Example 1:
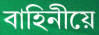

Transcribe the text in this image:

বাহিনীয়ে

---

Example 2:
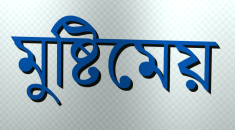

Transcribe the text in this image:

মুষ্টিমেয়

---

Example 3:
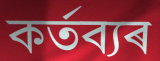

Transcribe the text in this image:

কৰ্তব্যৰ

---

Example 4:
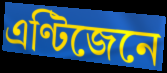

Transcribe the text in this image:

এণ্টিজেনে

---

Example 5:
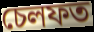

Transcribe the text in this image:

চেলফত